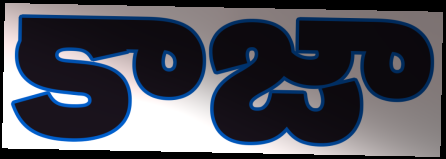
కాజా